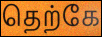
தெற்கே